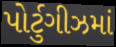
પોર્ટુગીઝમાં